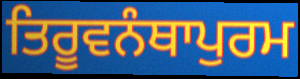
ਤਿਰੂਵਨੰਥਾਪੁਰਮ